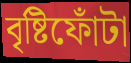
বৃষ্টিফোঁটা